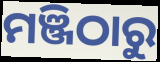
ମଞ୍ଜିଠାରୁ